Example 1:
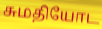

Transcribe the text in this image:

சுமதியோட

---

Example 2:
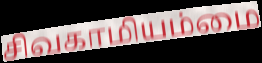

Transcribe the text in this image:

சிவகாமியம்மை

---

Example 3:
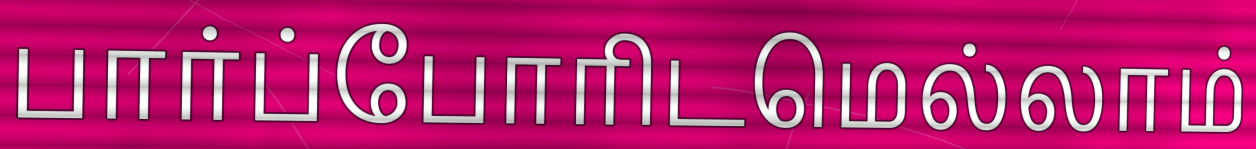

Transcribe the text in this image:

பார்ப்போரிடமெல்லாம்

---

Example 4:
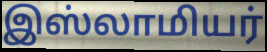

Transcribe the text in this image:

இஸ்லாமியர்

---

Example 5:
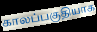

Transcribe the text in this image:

காலப்பகுதியாக